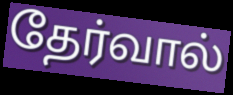
தேர்வால்